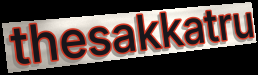
thesakkatru